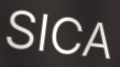
SICA